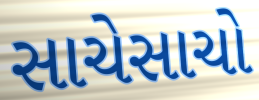
સાચેસાચો